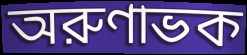
অৰুণাভক